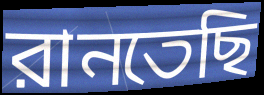
রানতেছি